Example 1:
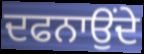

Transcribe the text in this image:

ਦਫਨਾਉਂਦੇ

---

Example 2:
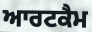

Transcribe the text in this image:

ਆਰਟਕੈਮ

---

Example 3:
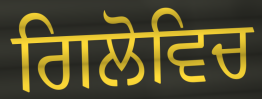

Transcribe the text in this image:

ਗਿਲੋਵਿਚ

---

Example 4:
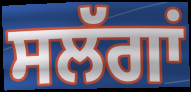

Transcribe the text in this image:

ਸਲੱਗਾਂ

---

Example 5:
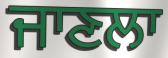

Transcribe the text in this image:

ਜਾਣਲਾ